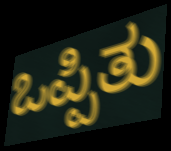
ಒಪ್ಪಿತು